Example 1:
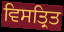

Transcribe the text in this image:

ਵਿਸਤ੍ਰਿਤ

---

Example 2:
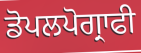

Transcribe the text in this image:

ਡੋਪਲਪੋਗ੍ਰਾਫੀ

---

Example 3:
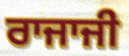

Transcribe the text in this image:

ਰਾਜਾਜੀ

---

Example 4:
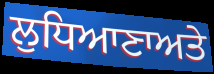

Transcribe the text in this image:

ਲੁਧਿਆਣਾਅਤੇ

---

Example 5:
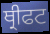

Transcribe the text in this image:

ਥ੍ਰੀਫਟ